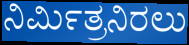
ನಿರ್ಮಿತ್ರನಿರಲು